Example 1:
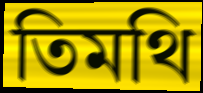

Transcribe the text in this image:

তিমথি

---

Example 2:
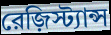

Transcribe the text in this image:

রেজ়িস্ট্যান্স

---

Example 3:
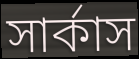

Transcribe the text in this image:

সার্কাস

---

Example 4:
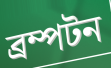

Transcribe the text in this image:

ব্রম্পটন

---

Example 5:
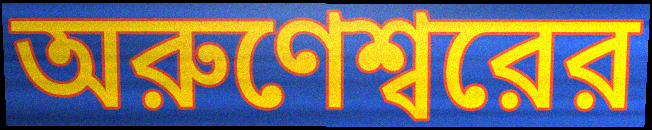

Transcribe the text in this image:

অরুণেশ্বরের